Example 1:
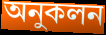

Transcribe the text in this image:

অনুকলন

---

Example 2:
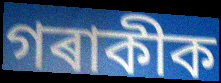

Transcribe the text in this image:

গৰাকীক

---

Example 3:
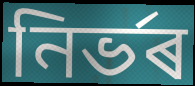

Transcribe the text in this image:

নিৰ্ভৰ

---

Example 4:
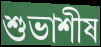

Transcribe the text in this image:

শুভাশীষ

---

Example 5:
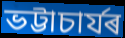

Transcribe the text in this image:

ভট্টাচাৰ্যৰ